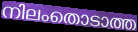
നിലംതൊടാത്ത